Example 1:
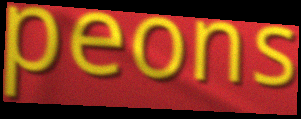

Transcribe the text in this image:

peons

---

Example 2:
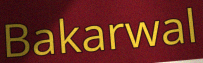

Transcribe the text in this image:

Bakarwal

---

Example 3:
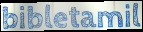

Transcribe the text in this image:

bibletamil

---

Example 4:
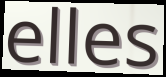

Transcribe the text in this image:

elles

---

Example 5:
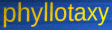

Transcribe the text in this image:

phyllotaxy